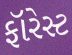
ફૉરેસ્ટ